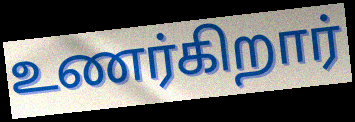
உணர்கிறார்